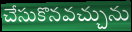
చేసుకొనవచ్చును